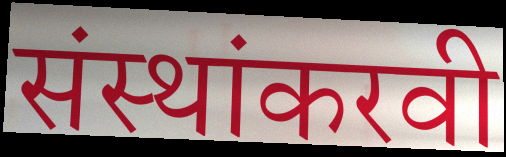
संस्थांकरवी